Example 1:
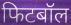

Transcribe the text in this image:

फिटबॉल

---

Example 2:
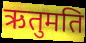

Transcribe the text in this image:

ऋतुमति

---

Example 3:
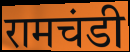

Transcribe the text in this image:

रामचंडी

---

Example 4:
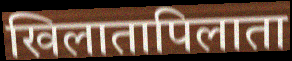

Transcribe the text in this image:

खिलातापिलाता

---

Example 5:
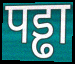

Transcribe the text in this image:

पड्ढा